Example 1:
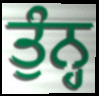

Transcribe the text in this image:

ਤੁੰਨ੍ਹ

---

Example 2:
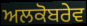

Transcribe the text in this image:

ਅਲਕੋਬਰੇਵ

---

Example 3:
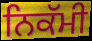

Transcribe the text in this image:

ਨਿਕੱਮੀ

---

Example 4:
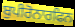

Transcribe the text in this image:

ਬੁਪੀਰੋਨਾਰਫਿਨ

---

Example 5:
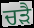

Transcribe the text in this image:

ਚੜੈ